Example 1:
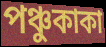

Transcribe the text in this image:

পঞ্চুকাকা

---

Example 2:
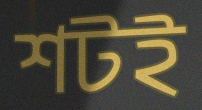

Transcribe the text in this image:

শটই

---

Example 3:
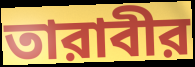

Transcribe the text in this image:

তারাবীর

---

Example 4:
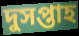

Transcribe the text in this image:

দুসপ্তাহ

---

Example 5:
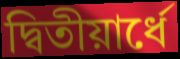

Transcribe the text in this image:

দ্বিতীয়ার্ধে